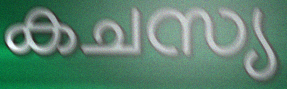
കചസ്യ